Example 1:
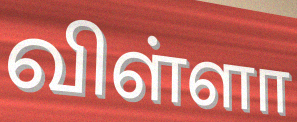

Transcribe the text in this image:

விள்ளா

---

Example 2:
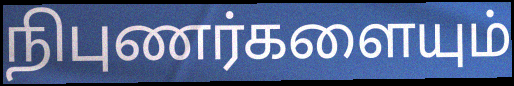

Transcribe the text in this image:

நிபுணர்களையும்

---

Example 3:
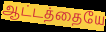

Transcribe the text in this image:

ஆட்டத்தையே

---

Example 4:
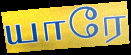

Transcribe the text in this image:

யாரே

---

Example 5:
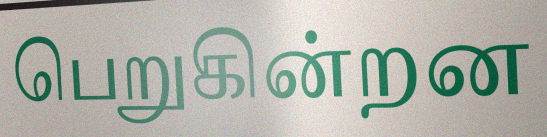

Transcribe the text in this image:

பெறுகின்றன